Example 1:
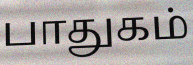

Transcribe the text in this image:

பாதுகம்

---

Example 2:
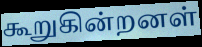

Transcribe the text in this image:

கூறுகின்றனள்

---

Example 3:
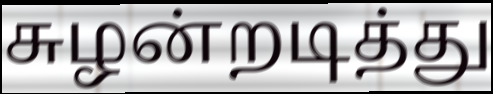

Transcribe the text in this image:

சுழன்றடித்து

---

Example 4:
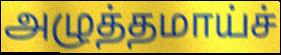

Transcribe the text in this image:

அழுத்தமாய்ச்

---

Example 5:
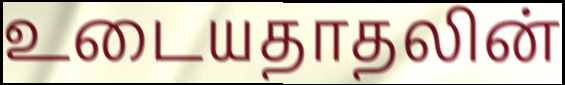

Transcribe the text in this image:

உடையதாதலின்